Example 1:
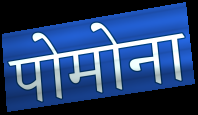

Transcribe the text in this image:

पोमोना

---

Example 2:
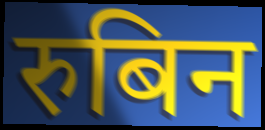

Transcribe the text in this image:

रुबिन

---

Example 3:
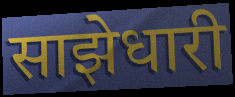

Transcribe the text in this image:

साझेधारी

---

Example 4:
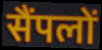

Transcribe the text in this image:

सैंपलों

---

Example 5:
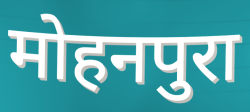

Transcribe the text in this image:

मोहनपुरा